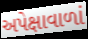
અપેક્ષાવાળાં